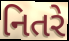
નિતરે